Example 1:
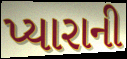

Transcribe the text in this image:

પ્યારાની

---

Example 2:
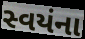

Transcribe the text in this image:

સ્વયંના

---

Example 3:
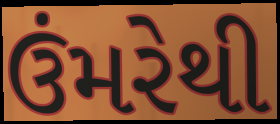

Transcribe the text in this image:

ઉંમરેથી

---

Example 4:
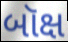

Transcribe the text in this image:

બૉક્ષ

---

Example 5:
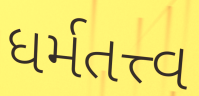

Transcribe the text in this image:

ધર્મતત્ત્વ